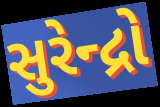
સુરેન્દ્રો